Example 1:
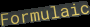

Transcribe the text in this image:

Formulaic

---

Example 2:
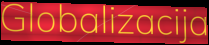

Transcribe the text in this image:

Globalizacija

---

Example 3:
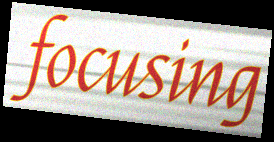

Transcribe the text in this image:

focusing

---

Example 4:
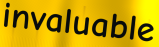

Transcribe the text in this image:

invaluable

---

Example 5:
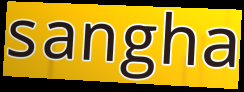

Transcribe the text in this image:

sangha